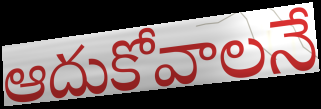
ఆదుకోవాలనే